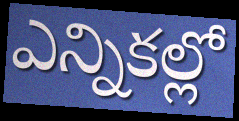
ఎన్నికల్లో